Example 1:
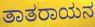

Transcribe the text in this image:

ತಾತರಾಯನ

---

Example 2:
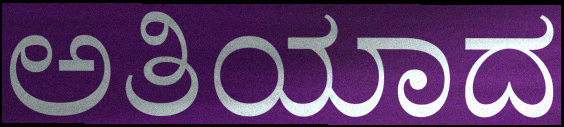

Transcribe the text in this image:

ಅತಿಯಾದ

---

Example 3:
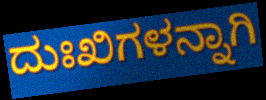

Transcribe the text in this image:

ದುಃಖಿಗಳನ್ನಾಗಿ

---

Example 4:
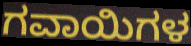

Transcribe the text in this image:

ಗವಾಯಿಗಳ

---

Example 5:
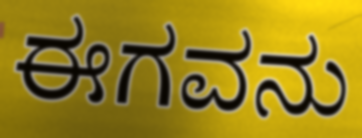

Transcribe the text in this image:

ಈಗವನು